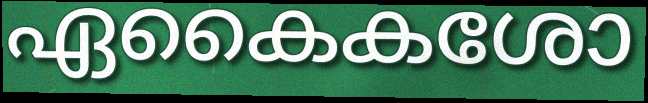
ഏകൈകശോ